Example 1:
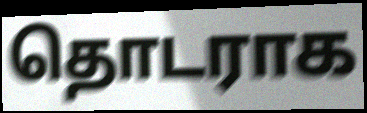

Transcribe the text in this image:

தொடராக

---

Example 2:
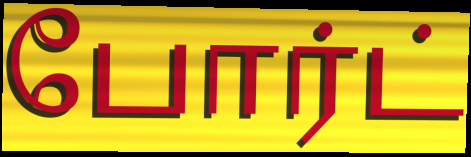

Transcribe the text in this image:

போர்ட்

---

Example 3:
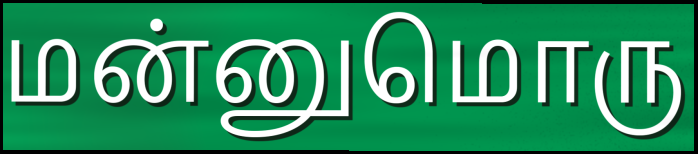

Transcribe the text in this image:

மன்னுமொரு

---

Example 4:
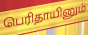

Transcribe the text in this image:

பெரிதாயினும்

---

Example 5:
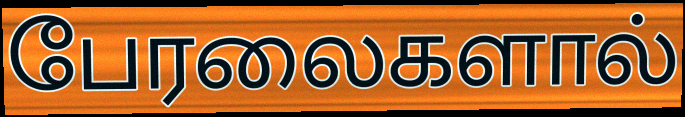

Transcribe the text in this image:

பேரலைகளால்